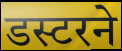
डस्टरने